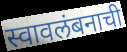
स्वावलंबनाची